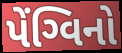
પેંગ્વિનો